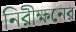
নিরীক্ষনের